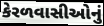
કેરળવાસીઓનું